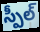
స్పీల్